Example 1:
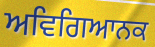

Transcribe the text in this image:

ਅਵਿਗਿਆਨਕ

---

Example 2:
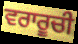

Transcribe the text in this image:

ਵਰਾਰੂਚੀ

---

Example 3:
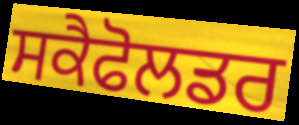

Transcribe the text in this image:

ਸਕੈਫੋਲਡਰ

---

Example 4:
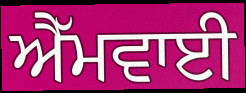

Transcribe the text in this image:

ਐੱਮਵਾਈ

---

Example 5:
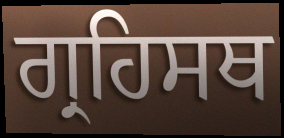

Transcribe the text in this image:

ਗ੍ਰਹਿਸਥ